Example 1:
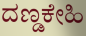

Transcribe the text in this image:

ದಣ್ಡಕೇಹಿ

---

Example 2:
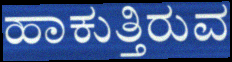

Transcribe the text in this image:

ಹಾಕುತ್ತಿರುವ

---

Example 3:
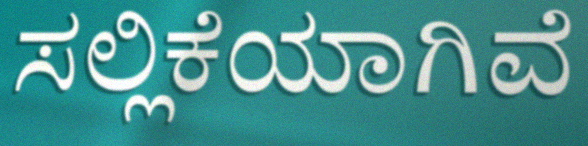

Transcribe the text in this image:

ಸಲ್ಲಿಕೆಯಾಗಿವೆ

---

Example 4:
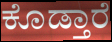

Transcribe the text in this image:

ಕೊಡ್ತಾರೆ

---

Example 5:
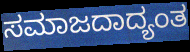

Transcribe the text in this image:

ಸಮಾಜದಾದ್ಯಂತ